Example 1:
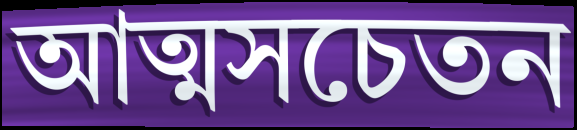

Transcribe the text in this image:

আত্মসচেতন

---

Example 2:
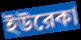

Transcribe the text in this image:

ইউরেকা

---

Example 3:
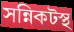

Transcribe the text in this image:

সন্নিকটস্থ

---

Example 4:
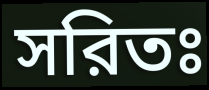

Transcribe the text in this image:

সরিতঃ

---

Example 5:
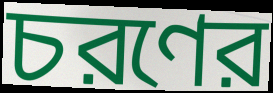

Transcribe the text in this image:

চরণের